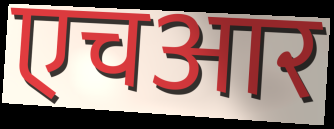
एचआर